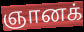
ஞானக்